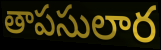
తాపసులార